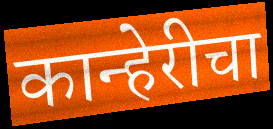
कान्हेरीचा